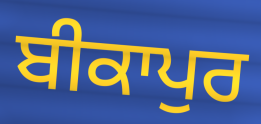
ਬੀਕਾਪੁਰ